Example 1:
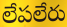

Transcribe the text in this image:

లేపలేరు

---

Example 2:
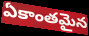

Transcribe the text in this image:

ఏకాంతమైన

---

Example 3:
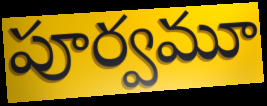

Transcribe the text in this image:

పూర్వమూ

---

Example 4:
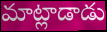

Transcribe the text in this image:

మాట్లాడాడు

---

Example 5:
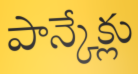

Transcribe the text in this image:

పాన్కేక్లు